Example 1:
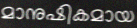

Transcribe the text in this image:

മാനുഷികമായ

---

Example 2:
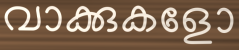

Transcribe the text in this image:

വാക്കുകളോ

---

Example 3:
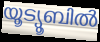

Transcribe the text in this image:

യൂട്യൂബിൽ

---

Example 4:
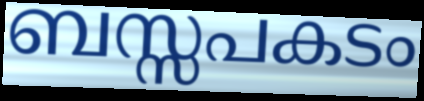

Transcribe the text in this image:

ബസ്സപകടം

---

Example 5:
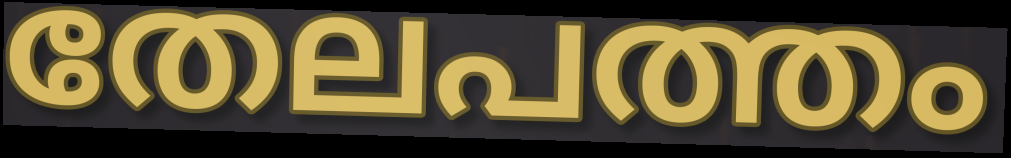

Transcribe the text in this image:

തേലപത്തം